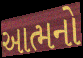
આત્મનો